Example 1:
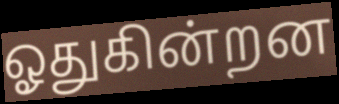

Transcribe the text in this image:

ஓதுகின்றன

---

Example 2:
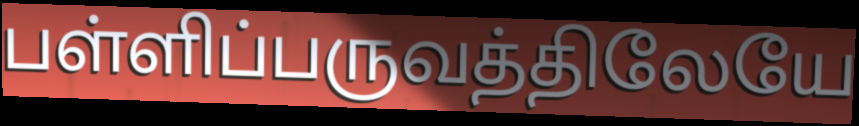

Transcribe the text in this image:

பள்ளிப்பருவத்திலேயே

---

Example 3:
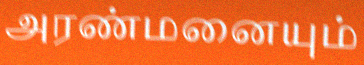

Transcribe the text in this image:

அரண்மனையும்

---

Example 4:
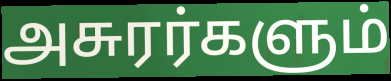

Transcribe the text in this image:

அசுரர்களும்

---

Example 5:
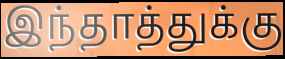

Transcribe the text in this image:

இந்தாத்துக்கு